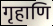
गृहाणि